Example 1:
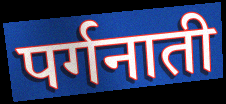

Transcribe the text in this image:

पर्गनाती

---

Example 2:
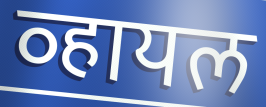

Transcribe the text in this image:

व्हायल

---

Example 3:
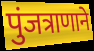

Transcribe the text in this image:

पुंजत्राणाने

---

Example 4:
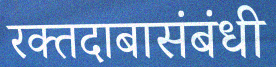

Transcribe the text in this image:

रक्तदाबासंबंधी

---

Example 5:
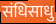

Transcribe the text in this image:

संधिसाधु